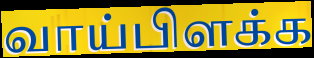
வாய்பிளக்க